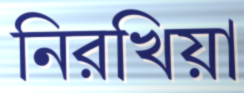
নিরখিয়া